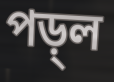
পড়্ল